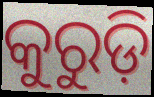
କୁରୁଡ଼ି